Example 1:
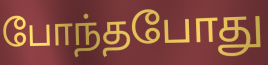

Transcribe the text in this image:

போந்தபோது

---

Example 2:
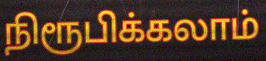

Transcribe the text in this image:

நிரூபிக்கலாம்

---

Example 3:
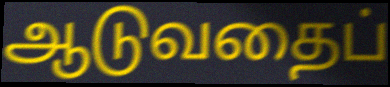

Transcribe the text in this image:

ஆடுவதைப்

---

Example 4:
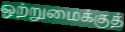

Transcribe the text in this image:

ஒற்றுமைக்குத்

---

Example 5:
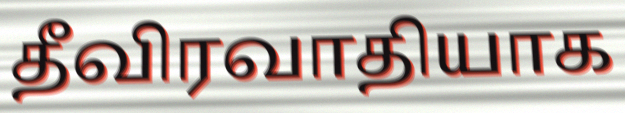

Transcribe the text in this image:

தீவிரவாதியாக